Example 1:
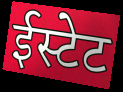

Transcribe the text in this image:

ईस्टेट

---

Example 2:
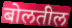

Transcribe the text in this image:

बोलतील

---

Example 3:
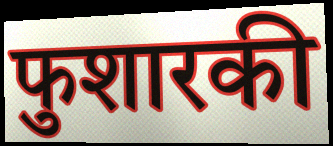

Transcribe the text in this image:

फुशारकी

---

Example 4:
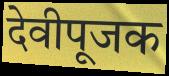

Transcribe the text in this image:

देवीपूजक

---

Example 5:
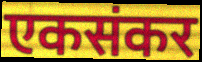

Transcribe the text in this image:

एकसंकर